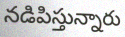
నడిపిస్తున్నారు